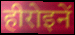
हीरोइनें